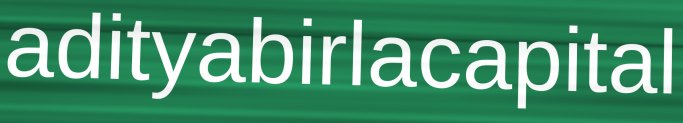
adityabirlacapital